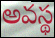
అవస్థ